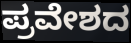
ಪ್ರವೇಶದ